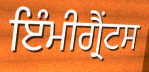
ਇੰਮੀਗ੍ਰੈਂਟਸ